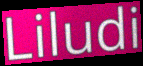
Liludi